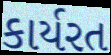
કાર્યરત